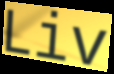
Liv